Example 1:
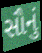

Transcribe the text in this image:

સૌનું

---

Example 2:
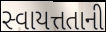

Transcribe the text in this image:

સ્વાયત્તતાની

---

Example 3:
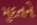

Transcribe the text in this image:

મુદતને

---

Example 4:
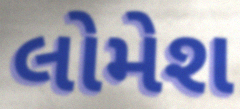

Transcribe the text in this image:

લોમેશ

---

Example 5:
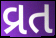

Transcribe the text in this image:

વ્રત